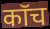
कॉच